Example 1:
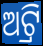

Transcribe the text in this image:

ଅଟ୍ରି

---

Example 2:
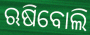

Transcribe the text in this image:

ଋଷିବୋଲି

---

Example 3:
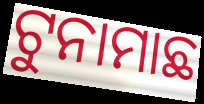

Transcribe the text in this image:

ଟୁନାମାଛ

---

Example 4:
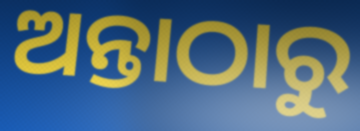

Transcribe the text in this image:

ଅନ୍ତାଠାରୁ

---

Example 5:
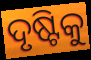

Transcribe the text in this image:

ଦୃଷ୍ଟିକୁ